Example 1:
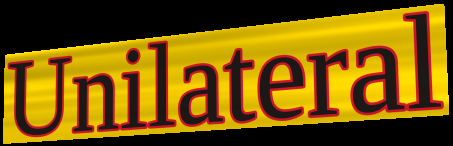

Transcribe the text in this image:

Unilateral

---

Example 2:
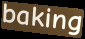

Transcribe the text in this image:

baking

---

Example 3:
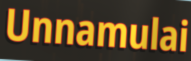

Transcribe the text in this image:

Unnamulai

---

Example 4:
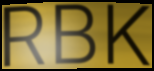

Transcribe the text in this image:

RBK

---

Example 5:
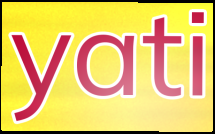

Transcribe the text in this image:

yati